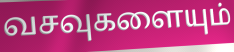
வசவுகளையும்